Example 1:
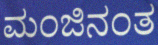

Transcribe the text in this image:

ಮಂಜಿನಂತ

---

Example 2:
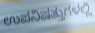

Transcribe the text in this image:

ಉಪನಿಷತ್ತುಗಳಲ್ಲಿ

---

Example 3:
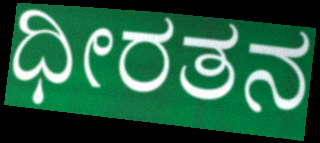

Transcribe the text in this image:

ಧೀರತನ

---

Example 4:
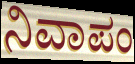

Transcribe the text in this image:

ನಿವಾಪಂ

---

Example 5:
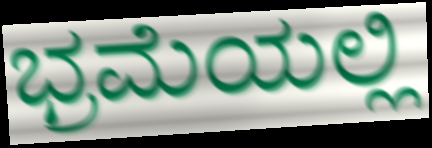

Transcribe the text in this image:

ಭ್ರಮೆಯಲ್ಲಿ